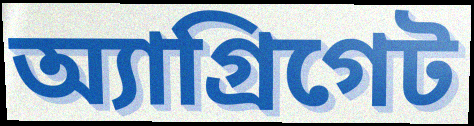
অ্যাগ্রিগেট